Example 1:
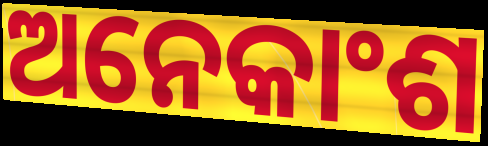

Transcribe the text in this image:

ଅନେକାଂଶ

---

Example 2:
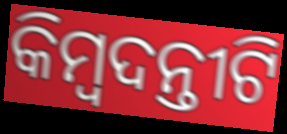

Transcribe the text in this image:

କିମ୍ୱଦନ୍ତୀଟି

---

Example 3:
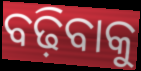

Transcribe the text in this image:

ବଢ଼ିବାକୁ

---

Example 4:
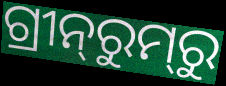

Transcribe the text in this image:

ଗ୍ରୀନ୍‌ରୁମ୍‌ରୁ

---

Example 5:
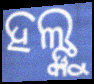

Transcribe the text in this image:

ହଲ୍ଙ୍କୁ